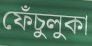
ফেঁচুলুকা